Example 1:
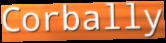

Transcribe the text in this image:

Corbally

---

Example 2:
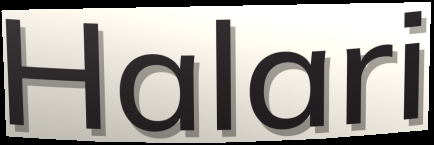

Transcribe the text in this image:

Halari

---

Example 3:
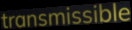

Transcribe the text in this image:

transmissible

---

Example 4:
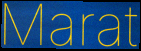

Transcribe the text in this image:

Marat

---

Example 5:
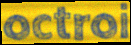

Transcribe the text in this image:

octroi